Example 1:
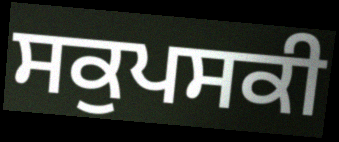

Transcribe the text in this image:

ਸਕੁਪਸਕੀ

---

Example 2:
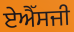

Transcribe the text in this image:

ਏਐੱਸਜੀ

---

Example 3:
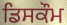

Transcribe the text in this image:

ਡਿਸਕੌਮ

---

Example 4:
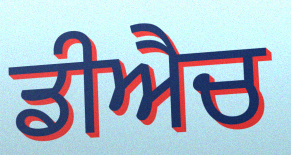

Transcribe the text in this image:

ਡੀਐਚ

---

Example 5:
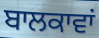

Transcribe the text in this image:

ਬਾਲਕਾਵਾਂ